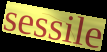
sessile